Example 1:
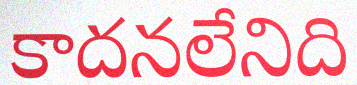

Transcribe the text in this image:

కాదనలేనిది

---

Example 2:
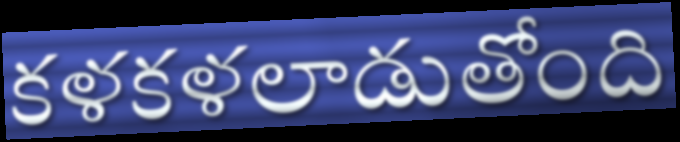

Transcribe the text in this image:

కళకళలాడుతోంది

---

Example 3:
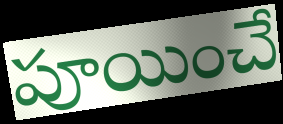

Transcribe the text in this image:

పూయించే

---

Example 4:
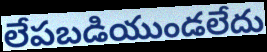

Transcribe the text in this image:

లేపబడియుండలేదు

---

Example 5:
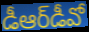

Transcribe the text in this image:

డీఆర్‌డీవో